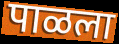
पाळला